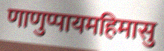
णाणुप्पायमहिमासु